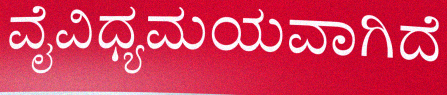
ವೈವಿಧ್ಯಮಯವಾಗಿದೆ